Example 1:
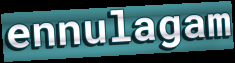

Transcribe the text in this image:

ennulagam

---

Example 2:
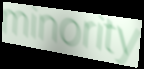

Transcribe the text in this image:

minority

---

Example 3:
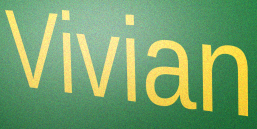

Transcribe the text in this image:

Vivian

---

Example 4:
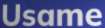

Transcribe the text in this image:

Usame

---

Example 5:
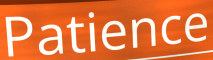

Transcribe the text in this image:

Patience